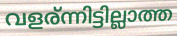
വളര്ന്നിട്ടില്ലാത്ത